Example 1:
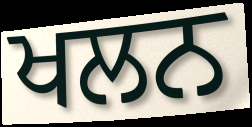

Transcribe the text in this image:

ਖਲਨ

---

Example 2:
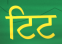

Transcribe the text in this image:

ਟਿਟ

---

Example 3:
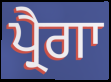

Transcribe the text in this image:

ਪ੍ਰੈਗਾ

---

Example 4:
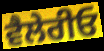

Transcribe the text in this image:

ਵੈਲੇਰੀਓ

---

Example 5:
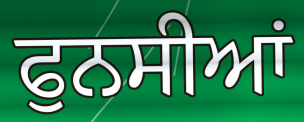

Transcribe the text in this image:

ਫੁਨਸੀਆਂ